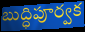
బుద్ధిపూర్వక